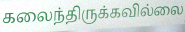
கலைந்திருக்கவில்லை